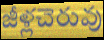
జీళ్లచెరువు